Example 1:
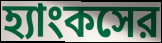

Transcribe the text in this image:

হ্যাংকসের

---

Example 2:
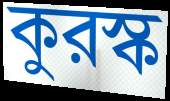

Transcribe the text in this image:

কুরস্ক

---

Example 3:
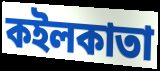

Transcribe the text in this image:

কইলকাতা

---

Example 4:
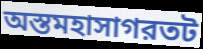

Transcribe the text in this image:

অস্তমহাসাগরতট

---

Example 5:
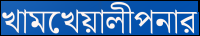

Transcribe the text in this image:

খামখেয়ালীপনার